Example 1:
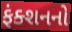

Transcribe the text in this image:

ફંક્શનનો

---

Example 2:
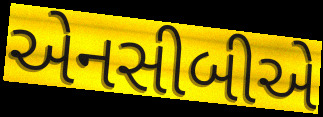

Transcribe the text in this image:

એનસીબીએ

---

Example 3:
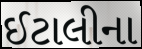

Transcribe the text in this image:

ઈટાલીના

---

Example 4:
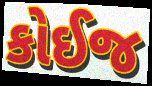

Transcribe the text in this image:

કોઈજ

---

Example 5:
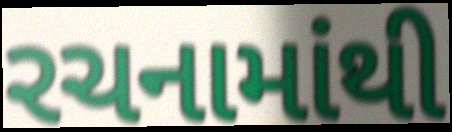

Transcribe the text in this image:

રચનામાંથી